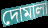
দোমালা